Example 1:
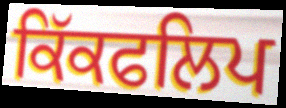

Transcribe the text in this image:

ਕਿੱਕਫਲਿਪ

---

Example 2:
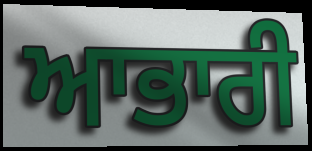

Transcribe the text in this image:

ਆਭਾਰੀ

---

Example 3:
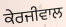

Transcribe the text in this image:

ਕੇਰਜੀਵਾਲ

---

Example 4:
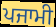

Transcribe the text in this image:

ਪਜਾਮੀ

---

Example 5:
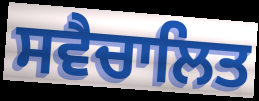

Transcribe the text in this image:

ਸਵੈਚਾਲਿਤ